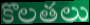
కొలతలు